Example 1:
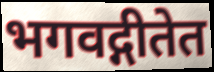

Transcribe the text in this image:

भगवद्गीतेत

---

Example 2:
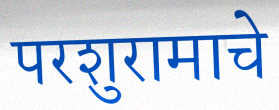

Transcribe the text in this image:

परशुरामाचे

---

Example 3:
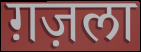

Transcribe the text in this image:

ग़ज़ला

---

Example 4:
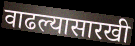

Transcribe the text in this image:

वाढल्यासारखी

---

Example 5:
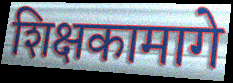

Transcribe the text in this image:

शिक्षकामागे